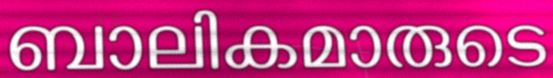
ബാലികമാരുടെ